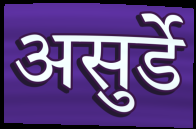
असुर्डे